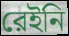
রেইনি